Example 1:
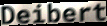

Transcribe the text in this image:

Deibert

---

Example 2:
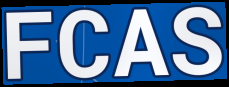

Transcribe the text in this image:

FCAS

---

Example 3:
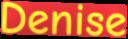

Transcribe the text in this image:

Denise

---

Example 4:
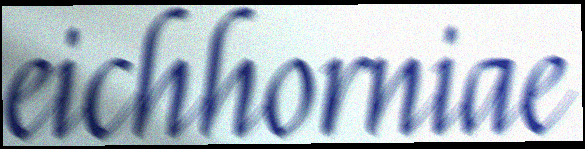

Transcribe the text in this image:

eichhorniae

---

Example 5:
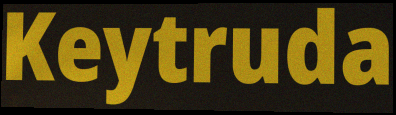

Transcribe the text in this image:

Keytruda